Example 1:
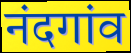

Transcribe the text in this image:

नंदगांव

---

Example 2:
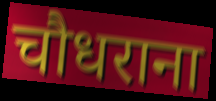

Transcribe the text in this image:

चौधराना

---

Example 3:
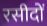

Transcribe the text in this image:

रसीदों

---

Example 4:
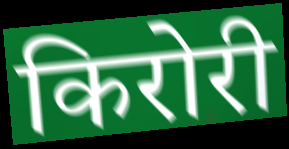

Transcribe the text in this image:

किरोरी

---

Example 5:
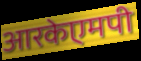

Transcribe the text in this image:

आरकेएमपी